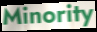
Minority